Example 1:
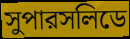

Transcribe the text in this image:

সুপারসলিডে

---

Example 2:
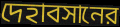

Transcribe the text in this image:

দেহাবসানের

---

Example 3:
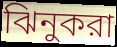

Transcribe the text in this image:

ঝিনুকরা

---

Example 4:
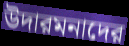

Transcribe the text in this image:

উদারমনাদের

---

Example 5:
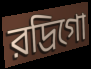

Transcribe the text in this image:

রদ্রিগো